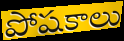
పోషకాలు